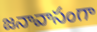
జనావాసంగా